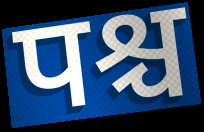
पश्च